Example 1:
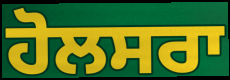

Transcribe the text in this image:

ਹੋਲਸਰਾ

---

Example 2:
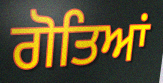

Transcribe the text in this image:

ਗੋਤਿਆਂ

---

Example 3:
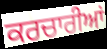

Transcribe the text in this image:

ਕਰਚਾਰੀਆਂ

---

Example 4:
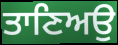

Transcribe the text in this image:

ਤਾਣਿਅਉ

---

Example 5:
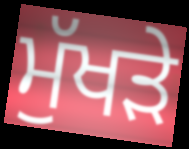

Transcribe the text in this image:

ਮੁੱਖੜੇ